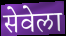
सेवेला